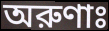
অরুণাঃ